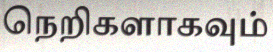
நெறிகளாகவும்